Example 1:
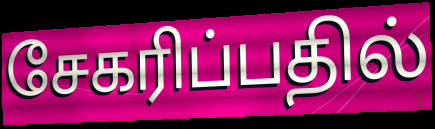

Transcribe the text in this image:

சேகரிப்பதில்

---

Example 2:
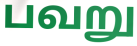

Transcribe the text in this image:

பவறு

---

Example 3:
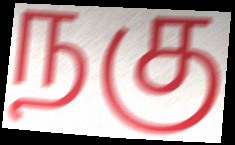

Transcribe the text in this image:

நகு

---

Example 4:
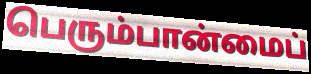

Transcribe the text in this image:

பெரும்பான்மைப்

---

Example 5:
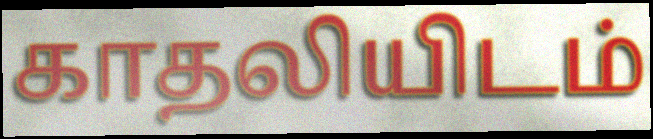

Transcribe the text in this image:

காதலியிடம்